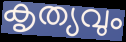
കൃത്യവും